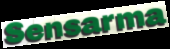
Sensarma